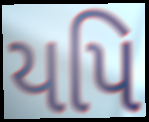
યપિ